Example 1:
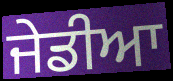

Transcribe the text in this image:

ਜੇਡੀਆ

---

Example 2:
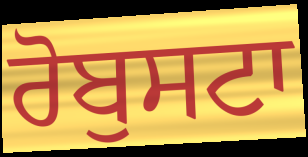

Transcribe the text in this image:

ਰੋਬੁਸਟਾ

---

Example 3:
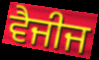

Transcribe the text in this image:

ਵੈਜੀਜ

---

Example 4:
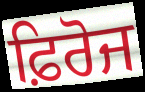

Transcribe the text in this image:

ਫ਼ਿਰੋਜ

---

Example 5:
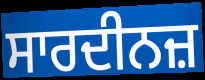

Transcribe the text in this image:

ਸਾਰਦੀਨਜ਼